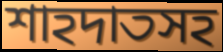
শাহদাতসহ